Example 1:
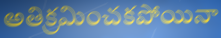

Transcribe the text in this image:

అతిక్రమించకపోయినా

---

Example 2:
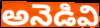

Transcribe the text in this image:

అనెడివి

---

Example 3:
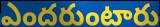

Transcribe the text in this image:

ఎందరుంటారు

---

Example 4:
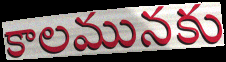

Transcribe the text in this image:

కాలమునకు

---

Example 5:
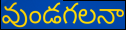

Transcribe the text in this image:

వుండగలనా